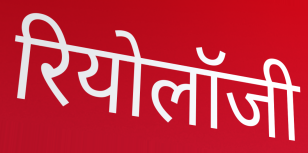
रियोलॉजी